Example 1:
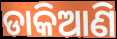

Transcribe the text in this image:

ଡାକିଆଣି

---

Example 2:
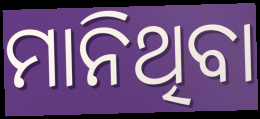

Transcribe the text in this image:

ମାନିଥିବା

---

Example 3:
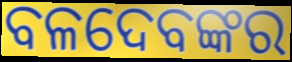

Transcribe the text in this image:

ବଳଦେବଙ୍କର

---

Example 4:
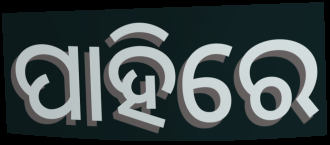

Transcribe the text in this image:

ପାହିରେ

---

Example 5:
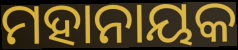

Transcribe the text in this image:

ମହାନାୟକ